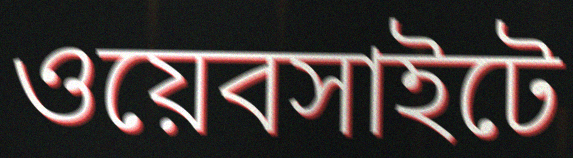
ওয়েবসাইটে